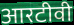
आरटीवी